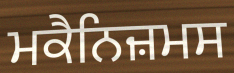
ਮਕੈਨਿਜ਼ਮਸ